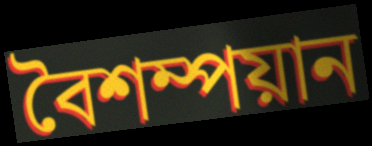
বৈশম্পয়ান